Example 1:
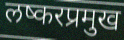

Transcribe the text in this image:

लष्करप्रमुख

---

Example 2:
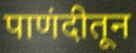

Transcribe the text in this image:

पाणंदीतून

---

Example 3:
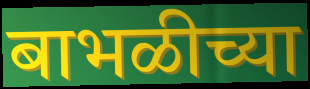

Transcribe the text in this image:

बाभळीच्या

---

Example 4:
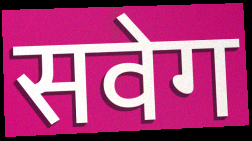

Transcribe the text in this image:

सवेग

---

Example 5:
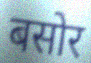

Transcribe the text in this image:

बसोर